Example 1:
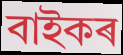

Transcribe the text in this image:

বাইকৰ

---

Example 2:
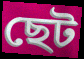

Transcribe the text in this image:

ছেট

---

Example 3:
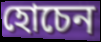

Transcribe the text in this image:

হোচেন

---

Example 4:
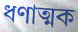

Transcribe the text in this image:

ধণাত্মক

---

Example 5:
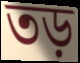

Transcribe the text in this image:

তড়